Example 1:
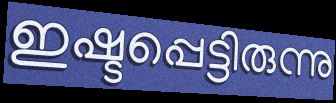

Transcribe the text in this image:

ഇഷ്ടപ്പെട്ടിരുന്നു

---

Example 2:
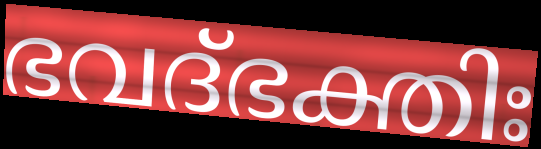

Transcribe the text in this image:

ഭവദ്ഭക്തിഃ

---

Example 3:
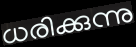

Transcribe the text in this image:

ധരിക്കുന്നു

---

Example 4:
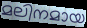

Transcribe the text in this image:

മലിനമായ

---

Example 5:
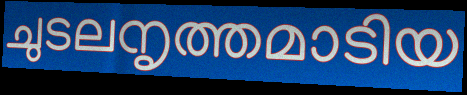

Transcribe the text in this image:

ചുടലനൃത്തമാടിയ